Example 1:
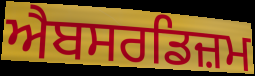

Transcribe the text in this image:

ਐਬਸਰਡਿਜ਼ਮ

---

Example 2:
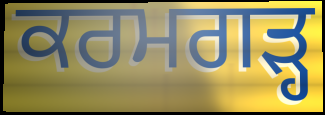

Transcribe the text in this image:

ਕਰਮਗੜ੍ਹ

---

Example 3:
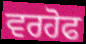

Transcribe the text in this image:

ਵਰਹੋਫ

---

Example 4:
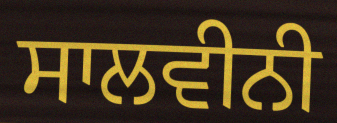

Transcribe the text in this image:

ਸਾਲਵੀਨੀ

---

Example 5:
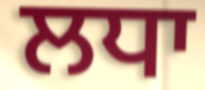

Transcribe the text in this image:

ਲਧਾ